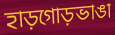
হাড়গোড়ভাঙা